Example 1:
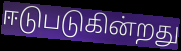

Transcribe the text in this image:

ஈடுபடுகின்றது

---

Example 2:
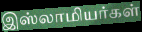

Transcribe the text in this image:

இஸ்லாமியர்கள்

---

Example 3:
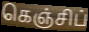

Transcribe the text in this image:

கெஞ்சிப்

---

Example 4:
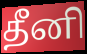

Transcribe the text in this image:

தீனி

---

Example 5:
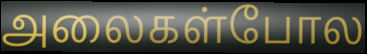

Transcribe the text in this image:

அலைகள்போல